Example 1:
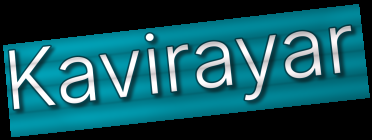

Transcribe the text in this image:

Kavirayar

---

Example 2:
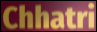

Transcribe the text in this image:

Chhatri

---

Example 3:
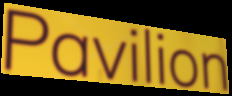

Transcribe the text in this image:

Pavilion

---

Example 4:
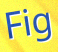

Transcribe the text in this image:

Fig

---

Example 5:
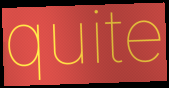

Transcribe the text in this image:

quite